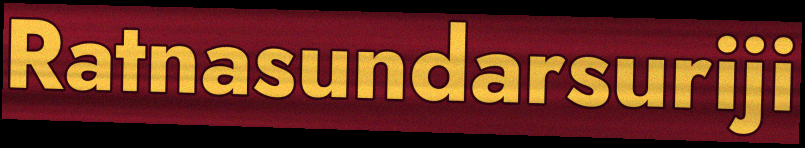
Ratnasundarsuriji